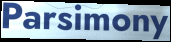
Parsimony